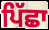
ਪਿੱਛਾ